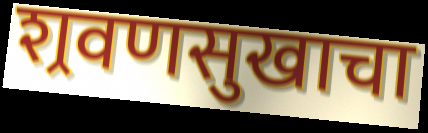
श्रवणसुखाचा